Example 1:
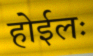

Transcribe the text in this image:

होईलः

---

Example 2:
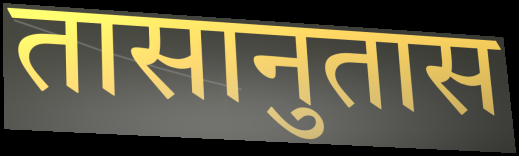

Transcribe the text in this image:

तासानुतास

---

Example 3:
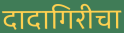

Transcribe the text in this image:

दादागिरीचा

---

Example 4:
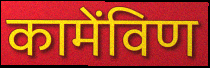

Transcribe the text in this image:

कामेंविण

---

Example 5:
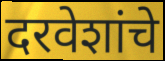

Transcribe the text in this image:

दरवेशांचे